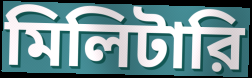
মিলিটারি